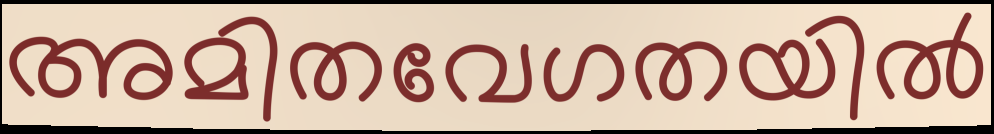
അമിതവേഗതയിൽ